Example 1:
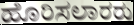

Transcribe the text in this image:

ಹೊರಿಸಲಾರರು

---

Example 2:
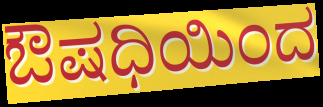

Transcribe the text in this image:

ಔಷಧಿಯಿಂದ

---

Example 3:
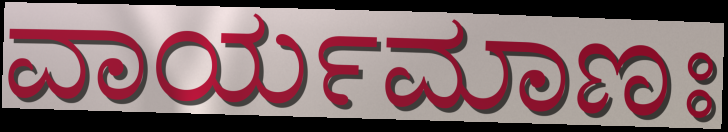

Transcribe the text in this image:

ವಾರ್ಯಮಾಣಃ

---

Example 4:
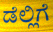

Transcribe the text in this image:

ಡೆಲ್ಲಿಗೆ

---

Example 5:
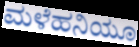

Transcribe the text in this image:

ಮಳೆಹನಿಯೂ